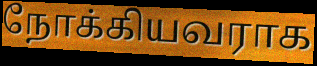
நோக்கியவராக